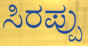
ಸಿರಪ್ಪು